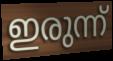
ഇരുന്ന്